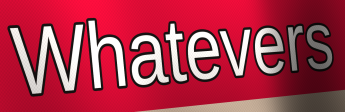
Whatevers